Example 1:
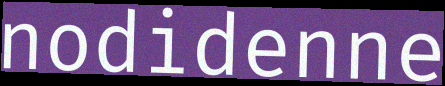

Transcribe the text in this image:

nodidenne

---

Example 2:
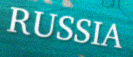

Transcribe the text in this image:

RUSSIA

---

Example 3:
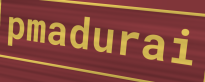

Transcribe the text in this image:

pmadurai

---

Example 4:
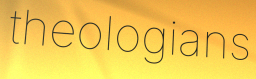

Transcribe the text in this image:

theologians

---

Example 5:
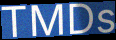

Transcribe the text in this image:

TMDs